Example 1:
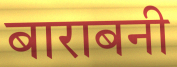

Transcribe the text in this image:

बाराबनी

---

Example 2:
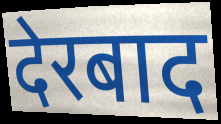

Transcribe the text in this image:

देरबाद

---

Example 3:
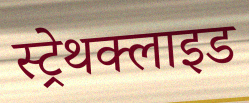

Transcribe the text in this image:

स्ट्रेथक्लाइड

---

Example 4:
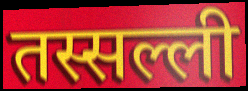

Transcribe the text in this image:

तस्सल्ली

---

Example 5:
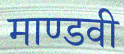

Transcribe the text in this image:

माण्डवी